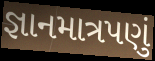
જ્ઞાનમાત્રપણું